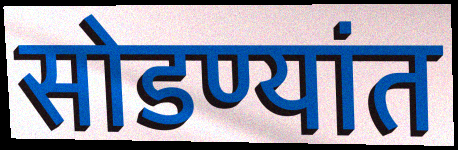
सोडण्यांत